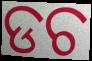
ଡଚ